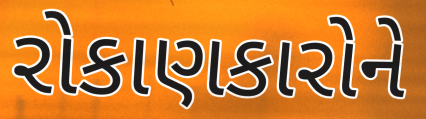
રોકાણકારોને